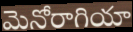
మెనోరాగియా